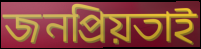
জনপ্রিয়তাই